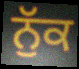
ਨੁੱਕ